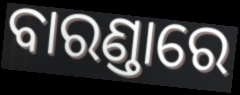
ବାରଣ୍ଡାରେ